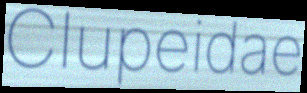
Clupeidae